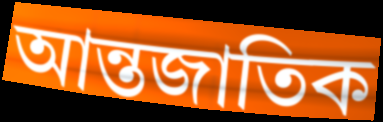
আন্তজাতিক